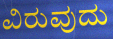
ವಿರುವುದು